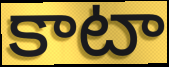
కాటా